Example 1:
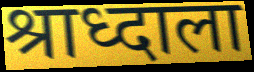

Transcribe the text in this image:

श्राध्दाला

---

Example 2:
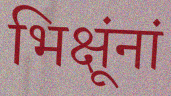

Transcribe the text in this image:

भिक्षूंनां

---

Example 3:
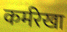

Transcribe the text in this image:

कर्मरेखा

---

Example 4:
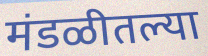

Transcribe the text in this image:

मंडळीतल्या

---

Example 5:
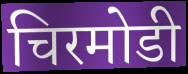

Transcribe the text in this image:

चिरमोडी